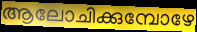
ആലോചിക്കുമ്പോഴേ